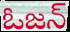
ఓజన్